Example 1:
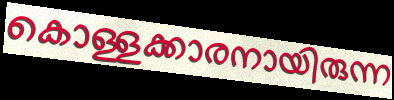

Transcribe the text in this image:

കൊള്ളക്കാരനായിരുന്ന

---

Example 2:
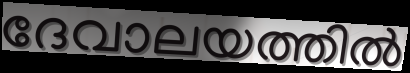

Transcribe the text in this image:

ദേവാലയത്തിൽ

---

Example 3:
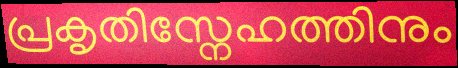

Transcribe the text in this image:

പ്രകൃതിസ്നേഹത്തിനും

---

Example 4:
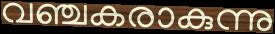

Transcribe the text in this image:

വഞ്ചകരാകുന്നു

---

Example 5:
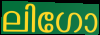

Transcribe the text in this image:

ലിഗോ